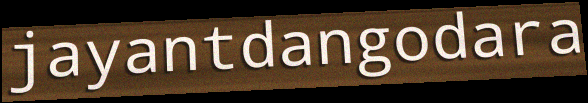
jayantdangodara